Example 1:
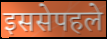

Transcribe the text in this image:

इससेपहले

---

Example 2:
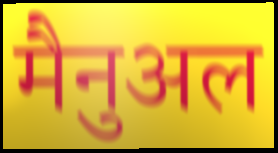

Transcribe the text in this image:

मैनुअल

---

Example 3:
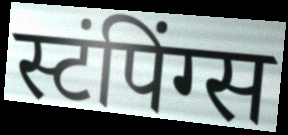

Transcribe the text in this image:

स्टंपिंग्स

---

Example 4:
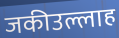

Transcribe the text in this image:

जकीउल्लाह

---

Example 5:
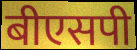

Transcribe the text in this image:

बीएसपी